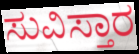
ಸುವಿಸ್ತಾರ